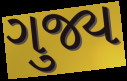
ગુજ્ય